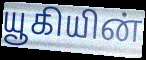
யூகியின்